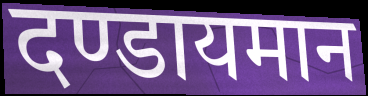
दण्डायमान